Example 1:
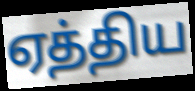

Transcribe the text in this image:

ஏத்திய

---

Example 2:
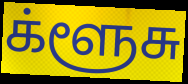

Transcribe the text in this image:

க்ளூசு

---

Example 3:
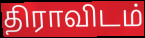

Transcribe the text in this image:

திராவிடம்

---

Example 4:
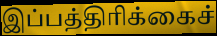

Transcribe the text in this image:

இப்பத்திரிக்கைச்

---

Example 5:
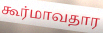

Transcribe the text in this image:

கூர்மாவதார